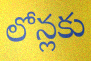
లోన్లకు